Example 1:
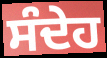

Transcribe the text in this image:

ਸੰਦੇਹ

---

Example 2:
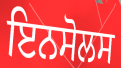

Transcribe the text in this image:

ਇਨਸੋਲਸ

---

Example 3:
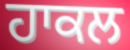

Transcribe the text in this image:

ਹਾਕਲ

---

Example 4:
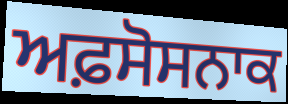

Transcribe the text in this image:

ਅਫ਼ਸੋਸਨਾਕ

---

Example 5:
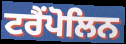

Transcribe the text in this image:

ਟਰੈਂਪੋਲਿਨ